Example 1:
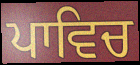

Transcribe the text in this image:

ਪਾਵਿਚ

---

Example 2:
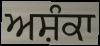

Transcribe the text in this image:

ਅਸ਼ੰਕਾ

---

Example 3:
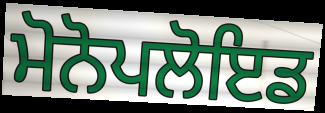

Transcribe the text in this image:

ਮੋਨੋਪਲੋਇਡ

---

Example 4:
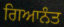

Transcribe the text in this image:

ਗਿਆਨੰਤ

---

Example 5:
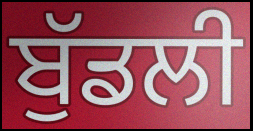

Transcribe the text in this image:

ਬੁੱਡਲੀ